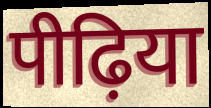
पीढ़िया